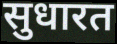
सुधारत